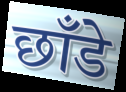
छाँडे